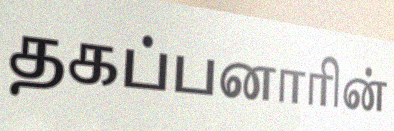
தகப்பனாரின்